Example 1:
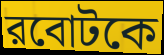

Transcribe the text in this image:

রবোটকে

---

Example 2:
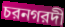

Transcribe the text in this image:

চরনগরদী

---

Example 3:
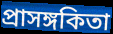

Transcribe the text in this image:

প্রাসঙ্গকিতা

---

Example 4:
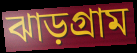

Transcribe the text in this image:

ঝাড়গ্রাম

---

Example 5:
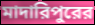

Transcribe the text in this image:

মাদারিপুরের